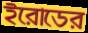
ইরোডের